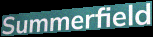
Summerfield